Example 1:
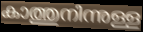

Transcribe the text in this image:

കാത്തുനിന്നുള്ള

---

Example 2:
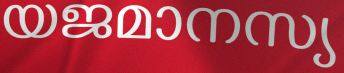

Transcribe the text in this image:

യജമാനസ്യ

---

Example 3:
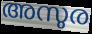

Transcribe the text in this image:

അസുര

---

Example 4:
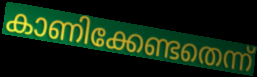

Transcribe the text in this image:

കാണിക്കേണ്ടതെന്ന്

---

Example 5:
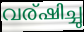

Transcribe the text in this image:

വര്ഷിച്ചു